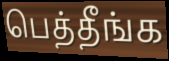
பெத்தீங்க